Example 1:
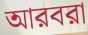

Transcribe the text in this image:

আরবরা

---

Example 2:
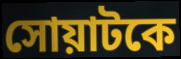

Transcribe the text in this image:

সোয়াটকে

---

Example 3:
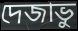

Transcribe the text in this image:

দেজাভু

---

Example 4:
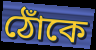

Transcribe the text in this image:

ঠোঁকে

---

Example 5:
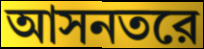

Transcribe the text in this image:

আসনতরে